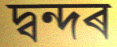
দ্বন্দৰ